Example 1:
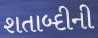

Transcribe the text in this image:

શતાબ્દીની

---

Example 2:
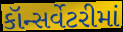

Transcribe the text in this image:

કૉન્સર્વેટરીમાં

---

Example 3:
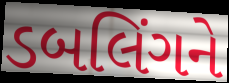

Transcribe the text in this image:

ડબલિંગને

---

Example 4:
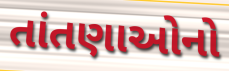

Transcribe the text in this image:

તાંતણાઓનો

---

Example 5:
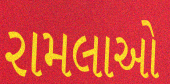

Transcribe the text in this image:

રામલાઓ